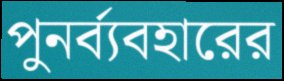
পুনর্ব্যবহারের